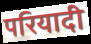
परियादी